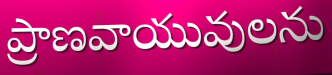
ప్రాణవాయువులను